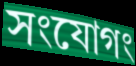
সংযোগং